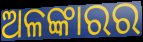
ଅଳଙ୍କାରର